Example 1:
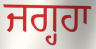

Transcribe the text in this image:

ਜਗ੍ਹਹਾ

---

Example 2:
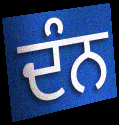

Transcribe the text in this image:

ਦੰਨ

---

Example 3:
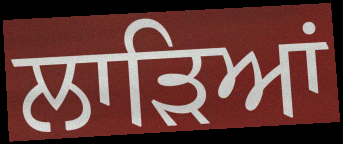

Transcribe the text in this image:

ਲਾੜਿਆਂ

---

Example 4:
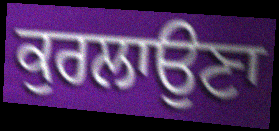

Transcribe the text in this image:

ਕੁਰਲਾਉਣਾ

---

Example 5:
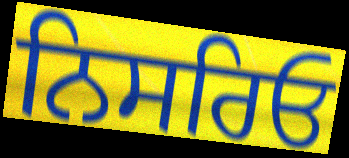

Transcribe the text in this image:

ਨਿਸਰਿਓ